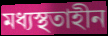
মধ্যস্থতাহীন